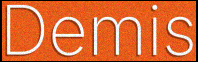
Demis